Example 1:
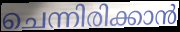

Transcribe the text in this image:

ചെന്നിരിക്കാൻ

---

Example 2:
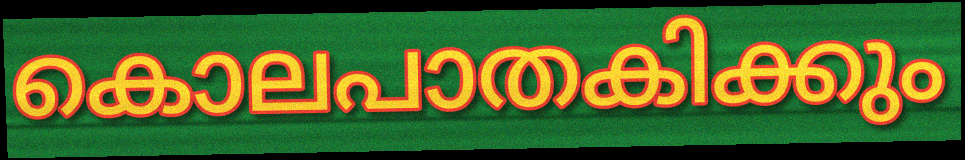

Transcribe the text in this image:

കൊലപാതകിക്കും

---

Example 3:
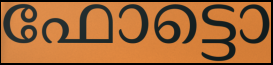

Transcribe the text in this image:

ഫോട്ടൊ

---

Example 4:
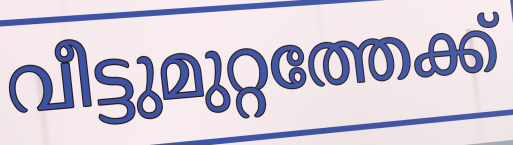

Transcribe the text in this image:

വീട്ടുമുറ്റത്തേക്ക്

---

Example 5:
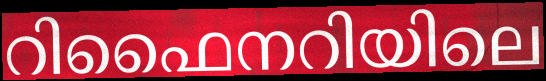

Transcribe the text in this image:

റിഫൈനറിയിലെ